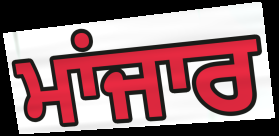
ਮਾਂਜਾਰ